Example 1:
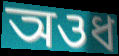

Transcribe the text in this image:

অওধ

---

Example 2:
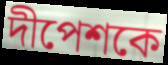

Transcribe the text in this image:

দীপেশকে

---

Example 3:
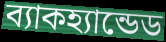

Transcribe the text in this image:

ব্যাকহ্যান্ডেড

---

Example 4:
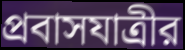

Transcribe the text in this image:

প্রবাসযাত্রীর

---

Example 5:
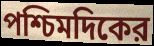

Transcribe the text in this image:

পশ্চিমদিকের